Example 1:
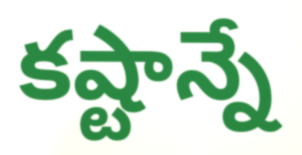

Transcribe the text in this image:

కష్టాన్నే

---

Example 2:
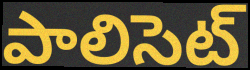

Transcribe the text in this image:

పాలిసెట్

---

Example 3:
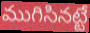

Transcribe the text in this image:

ముగిసినట్టే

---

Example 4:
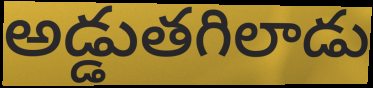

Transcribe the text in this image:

అడ్డుతగిలాడు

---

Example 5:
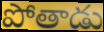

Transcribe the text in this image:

పోతాడు